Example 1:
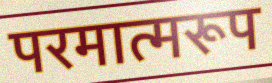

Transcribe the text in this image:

परमात्मरूप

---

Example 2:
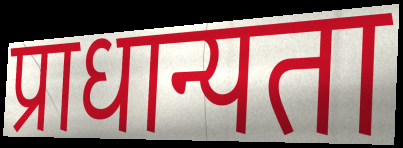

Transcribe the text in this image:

प्राधान्यता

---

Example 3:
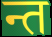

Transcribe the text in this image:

न्त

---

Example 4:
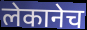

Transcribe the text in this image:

लेकानेच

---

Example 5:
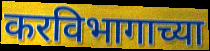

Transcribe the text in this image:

करविभागाच्या